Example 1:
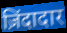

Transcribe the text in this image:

ज़िंदादार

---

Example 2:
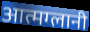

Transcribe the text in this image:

आत्मग्लानी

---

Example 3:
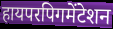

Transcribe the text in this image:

हायपरपिगमेंटेशन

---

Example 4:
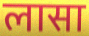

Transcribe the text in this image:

लासा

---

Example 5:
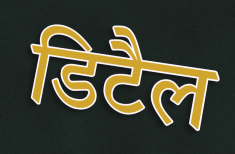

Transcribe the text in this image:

डिटैल